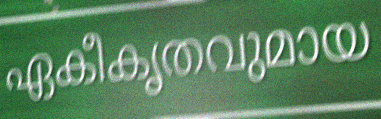
ഏകീകൃതവുമായ